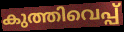
കുത്തിവെപ്പ്